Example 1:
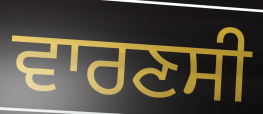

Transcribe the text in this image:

ਵਾਰਣਸੀ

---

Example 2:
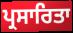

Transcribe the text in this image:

ਪ੍ਰਸਾਰਿਤਾ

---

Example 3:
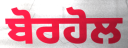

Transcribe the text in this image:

ਬੋਰਹੋਲ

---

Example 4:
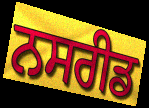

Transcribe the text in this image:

ਨਸਰੀਡ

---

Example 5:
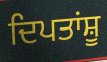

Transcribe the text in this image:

ਦਿਪਤਾਂਸ਼ੂ